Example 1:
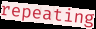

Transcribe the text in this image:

repeating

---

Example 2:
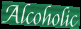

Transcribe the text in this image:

Alcoholic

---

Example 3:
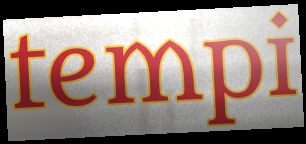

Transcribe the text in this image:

tempi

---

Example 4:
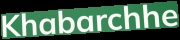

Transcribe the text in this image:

Khabarchhe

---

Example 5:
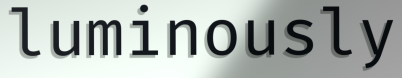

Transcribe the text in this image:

luminously